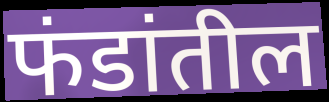
फंडांतील